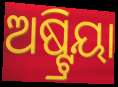
ଅଷ୍ଟ୍ରିୟା